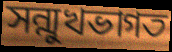
সন্মুখভাগত